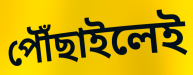
পৌঁছাইলেই